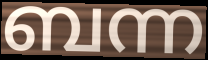
ബന്ന